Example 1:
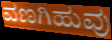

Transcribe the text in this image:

ವಣಗಿಹುವು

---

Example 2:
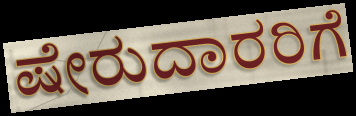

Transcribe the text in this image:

ಷೇರುದಾರರಿಗೆ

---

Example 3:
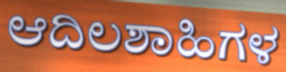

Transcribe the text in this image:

ಆದಿಲಶಾಹಿಗಳ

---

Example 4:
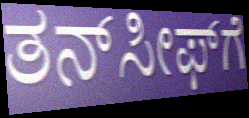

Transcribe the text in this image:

ತನ್‍ಸೀಫ್‍ಗೆ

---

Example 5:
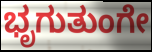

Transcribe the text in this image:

ಭೃಗುತುಂಗೇ